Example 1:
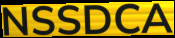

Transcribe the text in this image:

NSSDCA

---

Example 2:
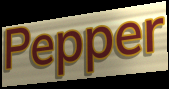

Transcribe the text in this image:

Pepper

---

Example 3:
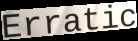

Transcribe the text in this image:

Erratic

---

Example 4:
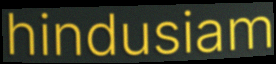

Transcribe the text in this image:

hindusiam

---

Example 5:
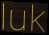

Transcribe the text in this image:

luk